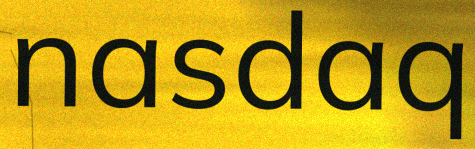
nasdaq